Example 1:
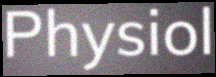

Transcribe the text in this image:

Physiol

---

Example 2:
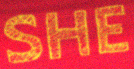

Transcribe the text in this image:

SHE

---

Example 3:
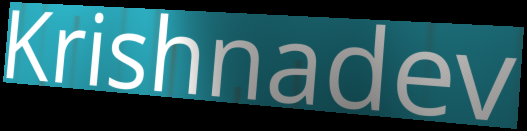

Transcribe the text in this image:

Krishnadev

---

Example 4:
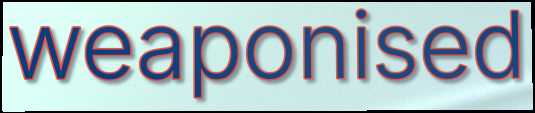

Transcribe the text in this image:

weaponised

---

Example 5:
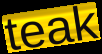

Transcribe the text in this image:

teak